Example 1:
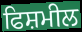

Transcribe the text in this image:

ਫਿਸ਼ਮੀਲ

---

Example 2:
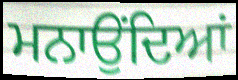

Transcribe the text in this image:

ਮਨਾਉਂਦਿਆਂ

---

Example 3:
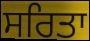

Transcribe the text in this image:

ਸਰਿਤਾ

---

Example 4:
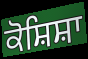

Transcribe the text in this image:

ਕੋਸ਼ਿਸ਼ਾ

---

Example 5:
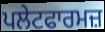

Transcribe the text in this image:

ਪਲੇਟਫਾਰਮਜ਼